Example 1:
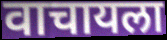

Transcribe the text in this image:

वाचायला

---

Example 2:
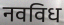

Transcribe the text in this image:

नवविध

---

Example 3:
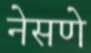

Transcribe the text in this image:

नेसणे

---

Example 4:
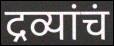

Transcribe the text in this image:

द्रव्यांचं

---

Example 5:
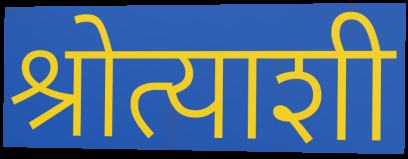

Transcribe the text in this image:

श्रोत्याशी